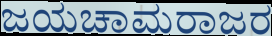
ಜಯಚಾಮರಾಜರ